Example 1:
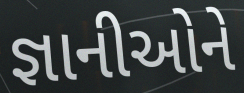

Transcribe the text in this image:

જ્ઞાનીઓને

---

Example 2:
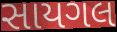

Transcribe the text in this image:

સાયગલ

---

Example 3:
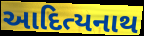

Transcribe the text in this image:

આદિત્યનાથ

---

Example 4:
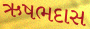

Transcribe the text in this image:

ઋષભદાસ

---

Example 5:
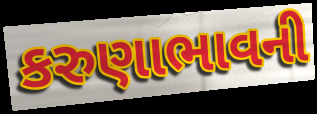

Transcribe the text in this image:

કરુણાભાવની